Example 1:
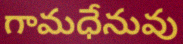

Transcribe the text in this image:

గామధేనువు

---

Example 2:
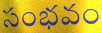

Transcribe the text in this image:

సంభవం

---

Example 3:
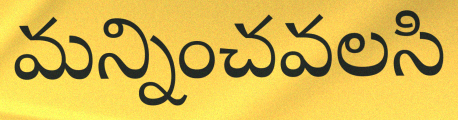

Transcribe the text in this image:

మన్నించవలసి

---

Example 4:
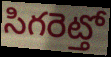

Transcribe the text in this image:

సిగరెట్తో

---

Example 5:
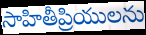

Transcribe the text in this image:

సాహితీప్రియులను